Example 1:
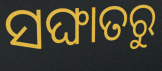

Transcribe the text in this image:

ସଙ୍ଘାତରୁ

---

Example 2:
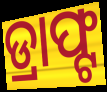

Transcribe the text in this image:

ଡ୍ରାଫ୍ଟ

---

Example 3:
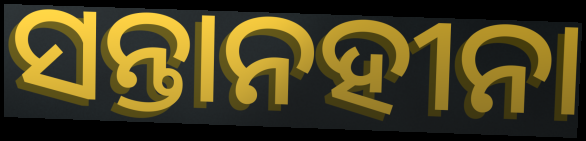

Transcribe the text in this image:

ସନ୍ତାନହୀନା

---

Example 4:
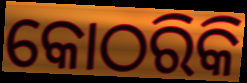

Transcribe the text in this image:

କୋଠରିକି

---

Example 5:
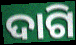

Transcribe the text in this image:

ଦାଗି